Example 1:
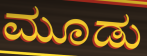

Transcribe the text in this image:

ಮೂಡು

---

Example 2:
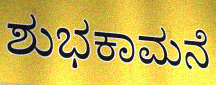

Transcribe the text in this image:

ಶುಭಕಾಮನೆ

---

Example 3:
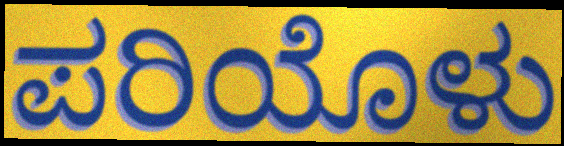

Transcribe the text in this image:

ಪರಿಯೊಳು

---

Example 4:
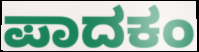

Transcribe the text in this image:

ಪಾದಕಂ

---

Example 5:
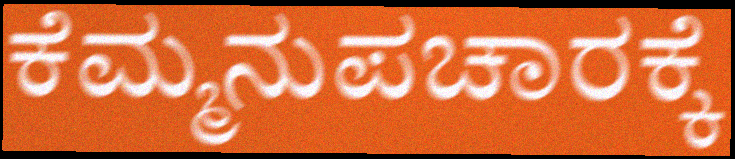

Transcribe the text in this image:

ಕೆಮ್ಮನುಪಚಾರಕ್ಕೆ